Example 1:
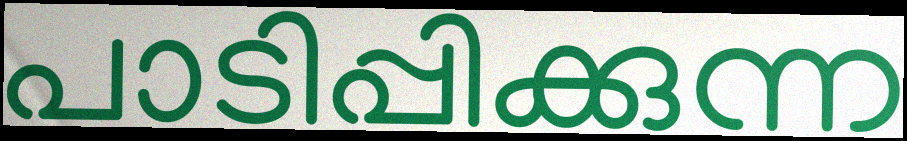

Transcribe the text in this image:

പാടിപ്പിക്കുന്ന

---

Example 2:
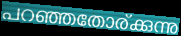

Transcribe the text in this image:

പറഞ്ഞതോര്ക്കുന്നു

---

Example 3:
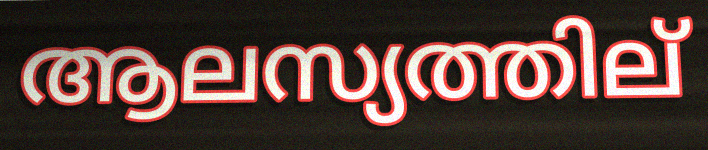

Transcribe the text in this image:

ആലസ്യത്തില്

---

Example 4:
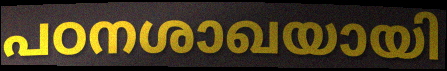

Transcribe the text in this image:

പഠനശാഖയായി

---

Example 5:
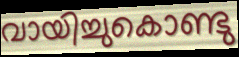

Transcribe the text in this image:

വായിച്ചുകൊണ്ടു